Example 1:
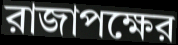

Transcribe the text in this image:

রাজাপক্ষের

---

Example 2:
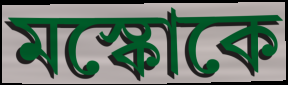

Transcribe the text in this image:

মস্কোকে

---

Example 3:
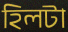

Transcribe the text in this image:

হিলটা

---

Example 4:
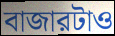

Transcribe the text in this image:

বাজারটাও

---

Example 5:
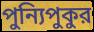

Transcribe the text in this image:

পুন্যিপুকুর